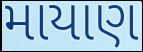
માયાણ